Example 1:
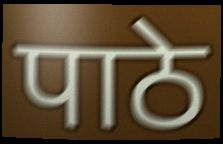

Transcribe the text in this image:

पाठे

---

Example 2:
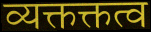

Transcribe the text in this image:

व्यक्तक्तत्व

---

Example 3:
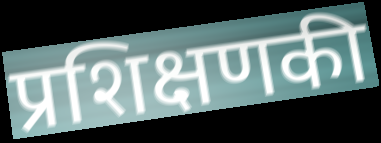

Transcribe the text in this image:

प्रशिक्षणकी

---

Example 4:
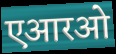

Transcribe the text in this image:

एआरओ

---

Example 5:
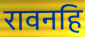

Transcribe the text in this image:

रावनहि